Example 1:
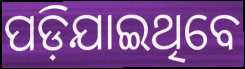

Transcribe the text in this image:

ପଡ଼ିଯାଇଥିବେ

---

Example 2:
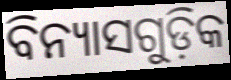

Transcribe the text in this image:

ବିନ୍ୟାସଗୁଡ଼ିକ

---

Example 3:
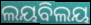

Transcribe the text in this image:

ଲୟବିଲୟ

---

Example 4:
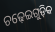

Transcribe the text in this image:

ଚଢ଼େଇଗୁଡ଼ିକ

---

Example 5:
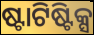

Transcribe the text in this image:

ଷ୍ଟାଟିଷ୍ଟିକ୍ସ